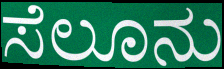
ಸೆಲೂನು